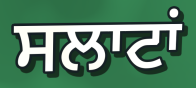
ਸਲਾਟਾਂ